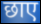
छाए